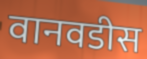
वानवडीस